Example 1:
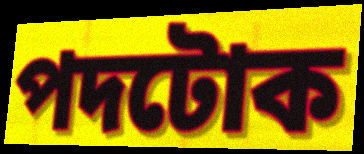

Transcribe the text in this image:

পদটোক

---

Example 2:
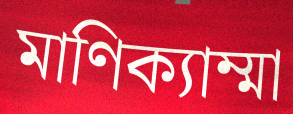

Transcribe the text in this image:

মাণিক্যাম্মা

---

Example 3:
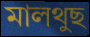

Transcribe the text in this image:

মালথুছ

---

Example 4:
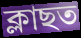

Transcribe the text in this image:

ক্লাছত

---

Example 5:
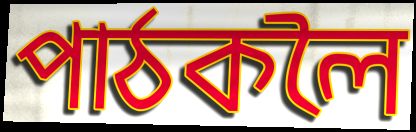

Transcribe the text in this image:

পাঠকলৈ